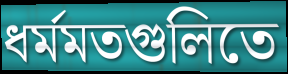
ধর্মমতগুলিতে